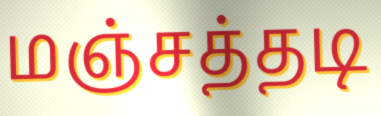
மஞ்சத்தடி